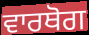
ਵਾਰਥੋਗ